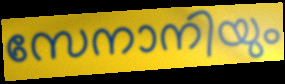
സേനാനിയും